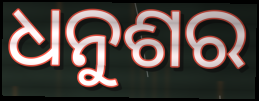
ଧନୁଶର